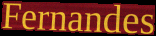
Fernandes